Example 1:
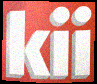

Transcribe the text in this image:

kii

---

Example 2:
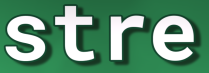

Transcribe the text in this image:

stre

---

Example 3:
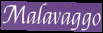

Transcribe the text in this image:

Malavaggo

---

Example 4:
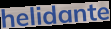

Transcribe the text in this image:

helidante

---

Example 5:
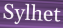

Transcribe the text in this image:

Sylhet